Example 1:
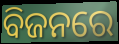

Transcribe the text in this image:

ବିଜନରେ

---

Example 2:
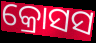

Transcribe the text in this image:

କ୍ରୋସସ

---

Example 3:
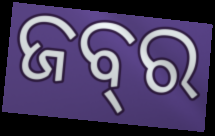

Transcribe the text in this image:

ଜବ୍‍ର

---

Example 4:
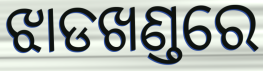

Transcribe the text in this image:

ଝାଡଖଣ୍ଡରେ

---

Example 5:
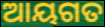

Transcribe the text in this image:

ଆୟଗତ